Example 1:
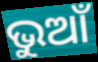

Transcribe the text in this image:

ଭୁଆଁ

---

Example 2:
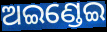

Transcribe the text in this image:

ଅଇଣ୍ଡେଇ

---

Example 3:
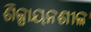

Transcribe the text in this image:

ଶିଳ୍ପାୟନଶୀଳ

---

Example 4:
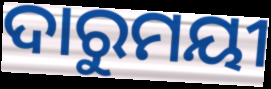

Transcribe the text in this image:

ଦାରୁମୟୀ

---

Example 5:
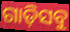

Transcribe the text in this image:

ଗାଡ଼ିସବୁ